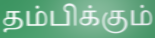
தம்பிக்கும்